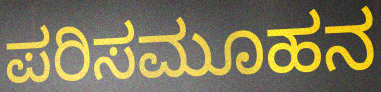
ಪರಿಸಮೂಹನ